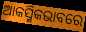
ଆକସ୍ମିକଭାବରେ